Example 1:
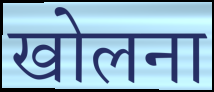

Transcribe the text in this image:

खोलना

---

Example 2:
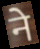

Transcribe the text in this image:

ने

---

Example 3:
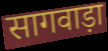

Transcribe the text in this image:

सागवाड़ा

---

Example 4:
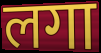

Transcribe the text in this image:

लगा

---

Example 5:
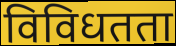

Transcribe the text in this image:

विविधतता